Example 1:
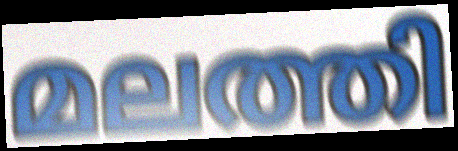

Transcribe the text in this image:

മലത്തി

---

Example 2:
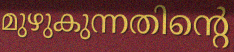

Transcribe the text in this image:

മുഴുകുന്നതിന്റെ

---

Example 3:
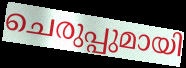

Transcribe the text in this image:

ചെരുപ്പുമായി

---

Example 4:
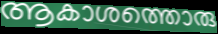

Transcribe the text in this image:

ആകാശത്തൊരു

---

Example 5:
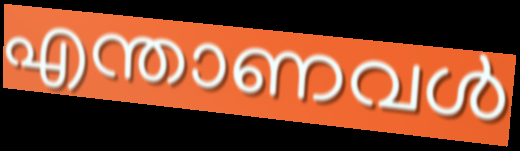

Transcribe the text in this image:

എന്താണവൾ